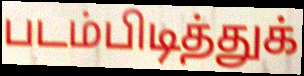
படம்பிடித்துக்